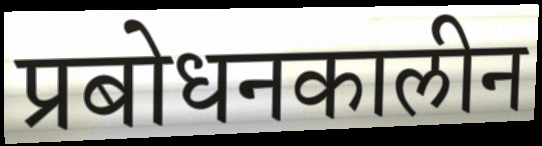
प्रबोधनकालीन